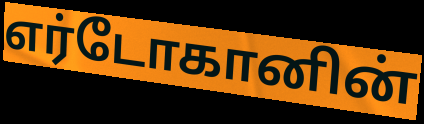
எர்டோகானின்